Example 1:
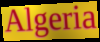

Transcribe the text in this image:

Algeria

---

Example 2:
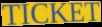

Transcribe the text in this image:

TICKET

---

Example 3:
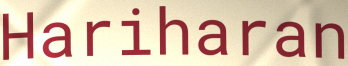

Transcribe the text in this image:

Hariharan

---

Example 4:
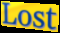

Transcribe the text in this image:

Lost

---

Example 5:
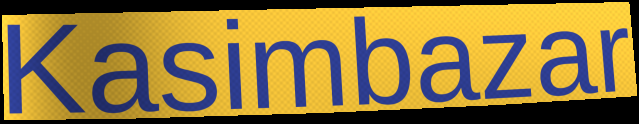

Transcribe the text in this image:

Kasimbazar